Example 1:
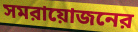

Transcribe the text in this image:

সমরায়োজনের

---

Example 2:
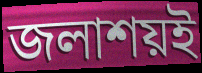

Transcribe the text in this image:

জলাশয়ই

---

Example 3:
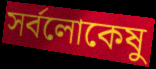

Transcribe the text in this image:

সর্বলোকেষু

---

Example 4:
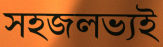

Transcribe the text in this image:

সহজলভ্যই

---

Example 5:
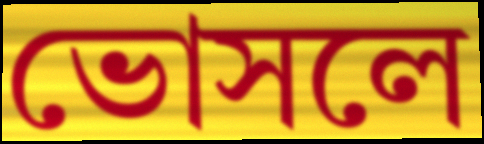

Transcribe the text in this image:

ভোসলে